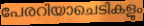
പേരറിയാചെടികളും